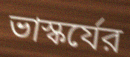
ভাস্কর্যের